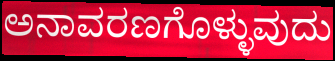
ಅನಾವರಣಗೊಳ್ಳುವುದು